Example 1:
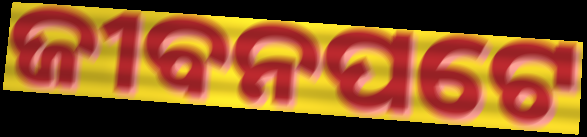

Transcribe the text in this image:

ଜୀବନପଟେ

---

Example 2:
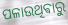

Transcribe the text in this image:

ପଳାଉଥିଵାରୁ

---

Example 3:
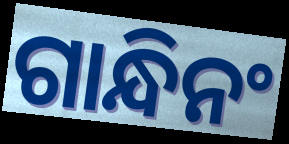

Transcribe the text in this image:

ଗାନ୍ଧିନଂ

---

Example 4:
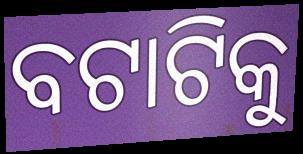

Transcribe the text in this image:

ବଟାଟିକୁ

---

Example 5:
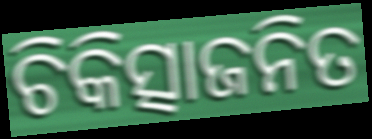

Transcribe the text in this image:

ଚିକିତ୍ସାଜନିତ